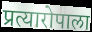
प्रत्यारोपाला